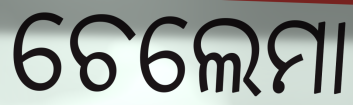
ଚେଲେମା